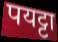
पयट्टा